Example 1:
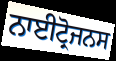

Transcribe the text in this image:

ਨਾਈਟ੍ਰੋਜਨਸ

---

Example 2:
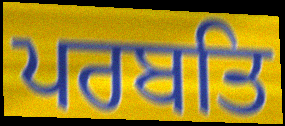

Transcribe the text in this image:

ਪਰਬਤਿ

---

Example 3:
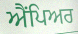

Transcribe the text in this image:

ਐਂਪਿਅਰ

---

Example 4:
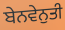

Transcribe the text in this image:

ਬੇਨਵੇਨੁਤੀ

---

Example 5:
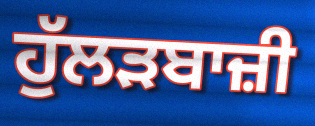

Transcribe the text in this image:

ਹੁੱਲੜਬਾਜ਼ੀ